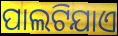
ପାଲଟିଯାଏ